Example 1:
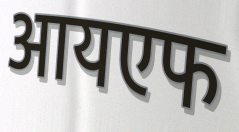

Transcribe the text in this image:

आयएफ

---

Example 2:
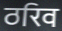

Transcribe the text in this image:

ठरिव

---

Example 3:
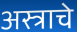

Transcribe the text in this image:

अस्त्राचे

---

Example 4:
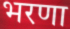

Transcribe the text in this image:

भरणा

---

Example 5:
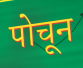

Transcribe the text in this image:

पोचून